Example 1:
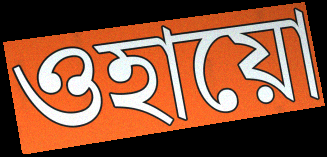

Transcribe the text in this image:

ওহায়ো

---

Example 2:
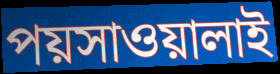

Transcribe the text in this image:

পয়সাওয়ালাই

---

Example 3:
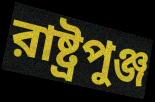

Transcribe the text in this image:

রাষ্ট্রপুঞ্জ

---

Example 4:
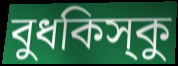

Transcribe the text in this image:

বুধকিস্‌কু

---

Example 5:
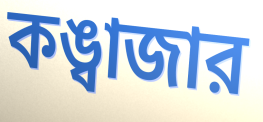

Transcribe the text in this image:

কঙ্বাজার